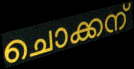
ചൊക്കന്